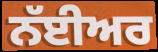
ਨੱਈਅਰ